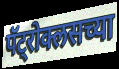
पॅट्रोक्लसच्या